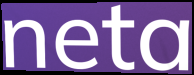
neta